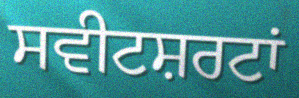
ਸਵੀਟਸ਼ਰਟਾਂ